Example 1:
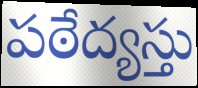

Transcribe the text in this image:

పఠేద్యస్తు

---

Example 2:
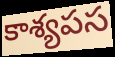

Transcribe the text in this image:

కాశ్యపస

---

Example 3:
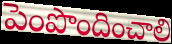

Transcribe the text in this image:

పెంపొందించాలి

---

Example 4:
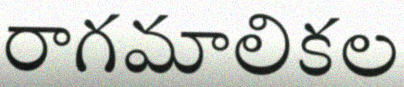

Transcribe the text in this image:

రాగమాలికల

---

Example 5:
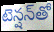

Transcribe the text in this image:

టెన్షన్‌తో